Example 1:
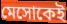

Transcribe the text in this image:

মেসোকেই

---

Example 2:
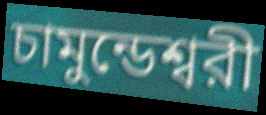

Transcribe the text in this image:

চামুন্ডেশ্বরী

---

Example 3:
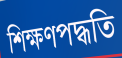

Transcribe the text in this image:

শিক্ষণপদ্ধতি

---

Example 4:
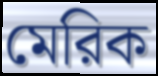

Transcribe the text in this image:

মেরিক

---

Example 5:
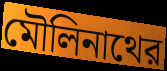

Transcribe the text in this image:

মৌলিনাথের